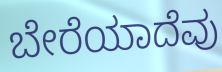
ಬೇರೆಯಾದೆವು